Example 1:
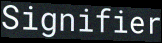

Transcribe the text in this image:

Signifier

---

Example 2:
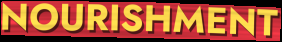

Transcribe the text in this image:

NOURISHMENT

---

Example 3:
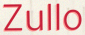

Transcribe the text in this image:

Zullo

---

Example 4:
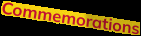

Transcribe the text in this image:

Commemorations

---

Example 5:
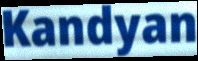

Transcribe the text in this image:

Kandyan